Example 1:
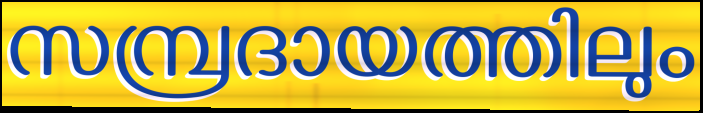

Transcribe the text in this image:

സമ്പ്രദായത്തിലും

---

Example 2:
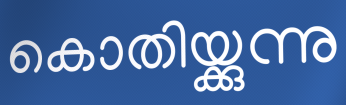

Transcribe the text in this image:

കൊതിയ്ക്കുന്നു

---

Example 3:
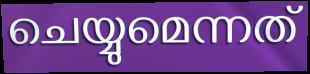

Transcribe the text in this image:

ചെയ്യുമെന്നത്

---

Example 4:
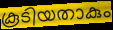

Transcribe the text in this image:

കൂടിയതാകും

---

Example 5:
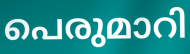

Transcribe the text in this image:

പെരുമാറി